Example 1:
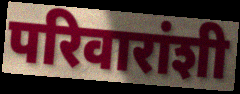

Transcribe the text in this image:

परिवारांशी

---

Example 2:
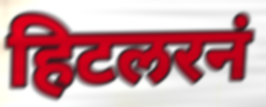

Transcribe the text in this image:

हिटलरनं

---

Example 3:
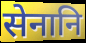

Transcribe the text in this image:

सेनानि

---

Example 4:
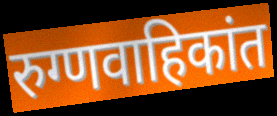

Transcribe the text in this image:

रुग्णवाहिकांत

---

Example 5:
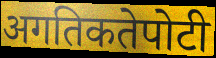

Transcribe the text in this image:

अगतिकतेपोटी